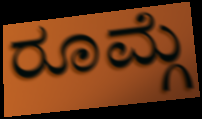
ರೂಮ್ಗೆ